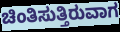
ಚಿಂತಿಸುತ್ತಿರುವಾಗ